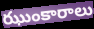
ఝుంకారాలు